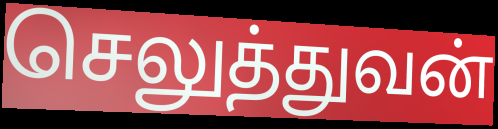
செலுத்துவன்